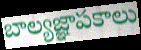
బాల్యజ్ఞాపకాలు